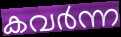
കവർന്ന